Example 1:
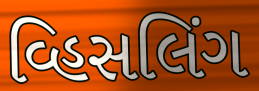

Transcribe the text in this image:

વ્હિસલિંગ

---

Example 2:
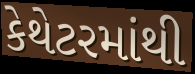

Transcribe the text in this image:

કેથેટરમાંથી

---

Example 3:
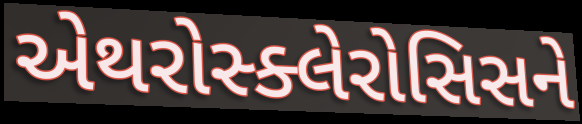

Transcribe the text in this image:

એથરોસ્ક્લેરોસિસને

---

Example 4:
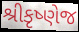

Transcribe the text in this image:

શ્રીકૃષ્ણેજ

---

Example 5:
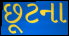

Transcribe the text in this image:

છૂટના